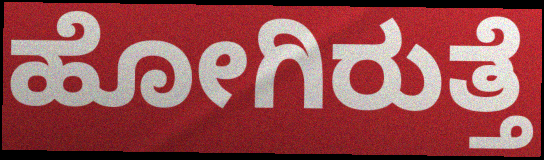
ಹೋಗಿರುತ್ತೆ